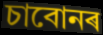
চাবোনৰ